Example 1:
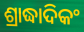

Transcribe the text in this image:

ଶ୍ରାଦ୍ଧାଦିକଂ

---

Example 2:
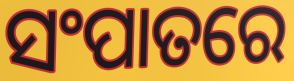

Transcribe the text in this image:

ସଂପାତରେ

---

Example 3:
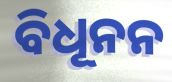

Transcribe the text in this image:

ବିଧୂନନ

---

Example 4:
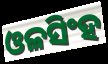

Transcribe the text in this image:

ଓଳସିଂହ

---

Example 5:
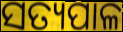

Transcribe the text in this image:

ସତ୍ୟପାଳ